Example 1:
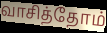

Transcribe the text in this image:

வாசித்தோம்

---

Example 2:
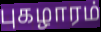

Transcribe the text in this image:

புகழாரம்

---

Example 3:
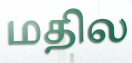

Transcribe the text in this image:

மதில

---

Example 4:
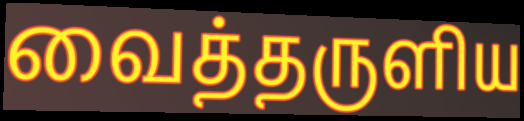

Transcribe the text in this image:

வைத்தருளிய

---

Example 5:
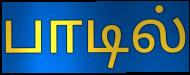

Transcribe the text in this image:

பாடில்